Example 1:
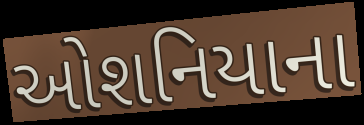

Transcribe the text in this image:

ઓશનિયાના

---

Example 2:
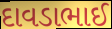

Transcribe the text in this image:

દાવડાભાઈ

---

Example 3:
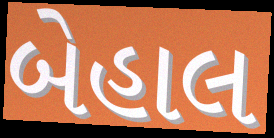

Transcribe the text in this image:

બેહાલ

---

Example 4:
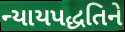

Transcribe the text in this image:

ન્યાયપદ્ધતિને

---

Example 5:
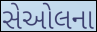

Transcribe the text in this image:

સેઓલના